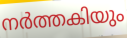
നർത്തകിയും